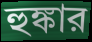
হুঙ্কার